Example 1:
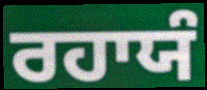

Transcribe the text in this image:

ਰਹਾਯੰ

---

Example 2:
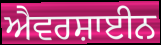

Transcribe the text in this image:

ਐਵਰਸ਼ਾਈਨ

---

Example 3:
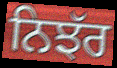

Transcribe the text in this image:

ਨਿਝੱਰ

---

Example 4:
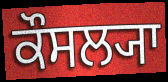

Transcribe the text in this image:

ਕੌਸਲ੍ਯਾ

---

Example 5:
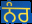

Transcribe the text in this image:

ਨੰਰ